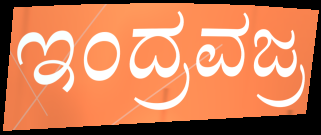
ಇಂದ್ರವಜ್ರ